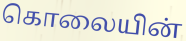
கொலையின்